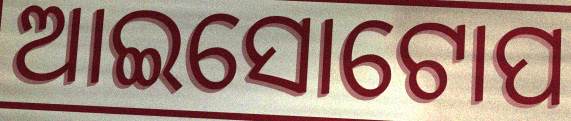
ଆଇସୋଟୋପ